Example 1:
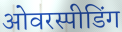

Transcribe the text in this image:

ओवरस्पीडिंग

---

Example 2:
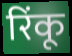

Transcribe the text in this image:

रिंकू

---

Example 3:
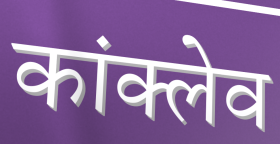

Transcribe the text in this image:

कांक्लेव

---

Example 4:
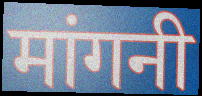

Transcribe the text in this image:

मांगनी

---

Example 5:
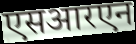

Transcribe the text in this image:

एसआरएन